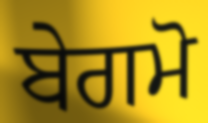
ਬੇਗਮੋ